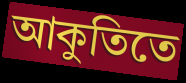
আকুতিতে